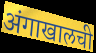
अंगाखालची